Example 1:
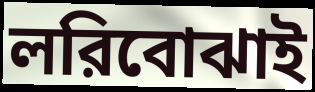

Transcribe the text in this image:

লরিবোঝাই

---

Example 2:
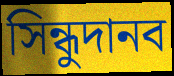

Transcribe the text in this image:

সিন্ধুদানব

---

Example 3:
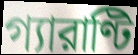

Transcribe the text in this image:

গ্যারাণ্টি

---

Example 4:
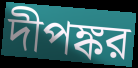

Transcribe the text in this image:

দীপঙ্কর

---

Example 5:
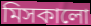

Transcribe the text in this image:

মিসকালো